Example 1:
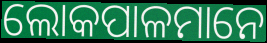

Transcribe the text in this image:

ଲୋକପାଳମାନେ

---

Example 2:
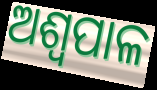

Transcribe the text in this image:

ଅଶ୍ୱପାଳ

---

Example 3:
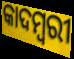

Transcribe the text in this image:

କାଦମ୍ୱରୀ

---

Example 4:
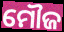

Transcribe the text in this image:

ମୌଜ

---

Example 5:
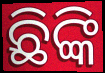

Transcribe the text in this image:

ଛିଙ୍କି